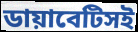
ডায়াবেটিসই